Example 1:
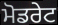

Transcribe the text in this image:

ਮੋਡਰੇਟ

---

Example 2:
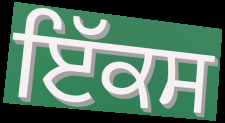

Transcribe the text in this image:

ਇੱਕਸ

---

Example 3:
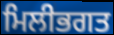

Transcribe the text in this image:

ਮਿਲੀਭਗਤ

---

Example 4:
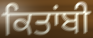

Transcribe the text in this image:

ਕਿਤਾਂਬੀ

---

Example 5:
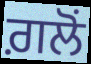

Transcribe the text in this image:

ਗ਼ਲੋਂ